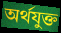
অৰ্থযুক্ত